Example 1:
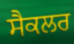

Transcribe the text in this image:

ਸੈਕਲਰ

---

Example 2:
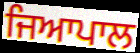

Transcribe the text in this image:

ਜਿਆਪਾਲ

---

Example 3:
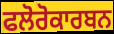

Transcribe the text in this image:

ਫਲੋਰੋਕਾਰਬਨ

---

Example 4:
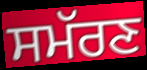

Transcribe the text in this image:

ਸਮੱਰਣ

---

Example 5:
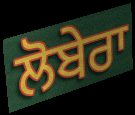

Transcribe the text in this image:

ਲੋਬੇਰਾ